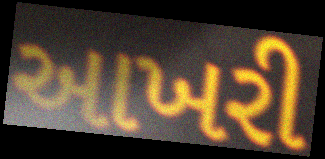
આખરી